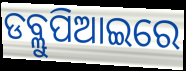
ଡବ୍ଲୁପିଆଇରେ